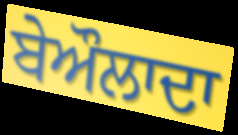
ਬੇਔਲਾਦਾ